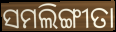
ସମଲିଙ୍ଗୀତା